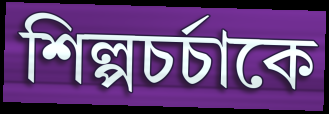
শিল্পচর্চাকে